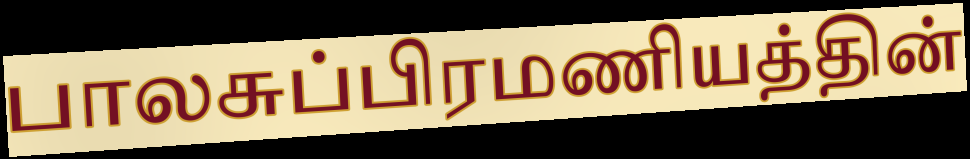
பாலசுப்பிரமணியத்தின்